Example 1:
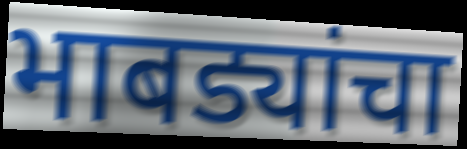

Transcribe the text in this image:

भाबड्यांचा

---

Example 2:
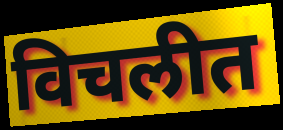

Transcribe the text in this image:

विचलीत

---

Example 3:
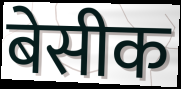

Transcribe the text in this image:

बेसीक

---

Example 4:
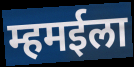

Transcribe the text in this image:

म्हमईला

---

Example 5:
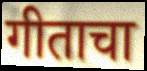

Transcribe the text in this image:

गीताचा